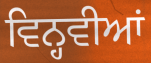
ਵਿਨ੍ਹਵੀਆਂ